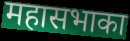
महासभाका